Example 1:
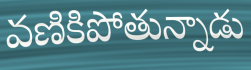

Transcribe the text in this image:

వణికిపోతున్నాడు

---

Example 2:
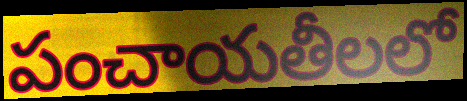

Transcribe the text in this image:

పంచాయతీలలో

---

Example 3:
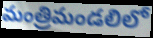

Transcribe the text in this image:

మంత్రిమండలిలో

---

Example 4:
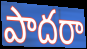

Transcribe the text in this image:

పాదరా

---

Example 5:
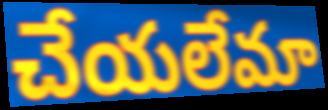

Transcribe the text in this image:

చేయలేమా